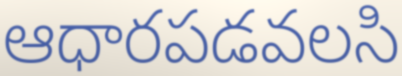
ఆధారపడవలసి